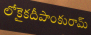
లోకైకదీపాంకురామ్